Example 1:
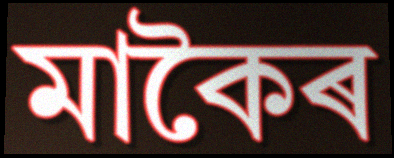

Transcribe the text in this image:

মাকৈৰ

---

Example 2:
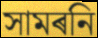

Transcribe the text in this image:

সামৰনি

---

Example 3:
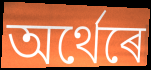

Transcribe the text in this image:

অৰ্থেৰে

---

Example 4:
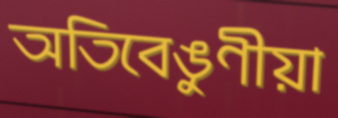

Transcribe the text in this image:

অতিবেঙুণীয়া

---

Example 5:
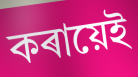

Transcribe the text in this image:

কৰায়েই